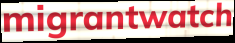
migrantwatch